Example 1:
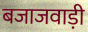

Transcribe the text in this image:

बजाजवाड़ी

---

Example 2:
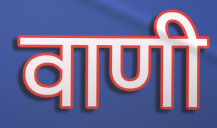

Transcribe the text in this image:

वाणी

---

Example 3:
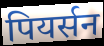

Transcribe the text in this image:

पियर्सन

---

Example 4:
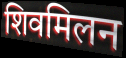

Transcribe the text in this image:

शिवमिलन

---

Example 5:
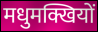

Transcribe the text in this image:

मधुमक्खियों